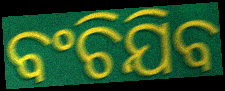
ବଂଚିଯିବ